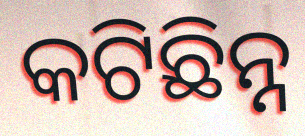
କଟିଛିନ୍ନ